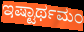
ಇಷ್ಟಾರ್ಥಮಂ